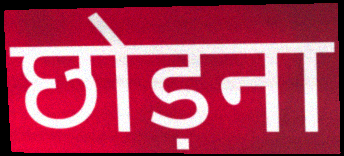
छोड़ना